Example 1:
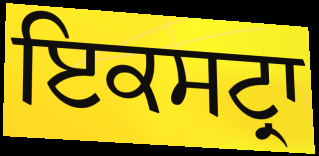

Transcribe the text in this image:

ਇਕਸਟ੍ਰਾ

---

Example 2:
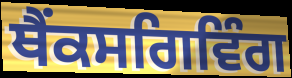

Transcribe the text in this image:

ਥੈਂਕਸਗਿਵਿੰਗ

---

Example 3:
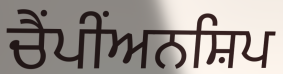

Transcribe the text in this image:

ਚੈਂਪੀਂਅਨਸ਼ਿਪ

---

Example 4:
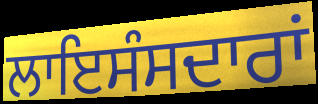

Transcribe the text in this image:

ਲਾਇਸੰਸਦਾਰਾਂ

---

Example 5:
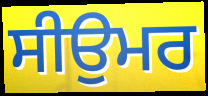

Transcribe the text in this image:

ਸੀਉਮਰ